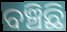
ବଞ୍ଚିଛି